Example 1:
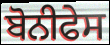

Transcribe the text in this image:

ਬੋਨੀਫੇਸ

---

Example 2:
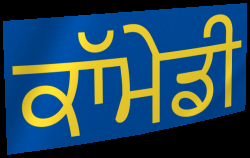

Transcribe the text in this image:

ਕਾੱਮੇਡੀ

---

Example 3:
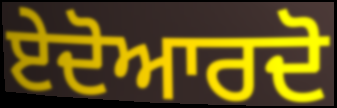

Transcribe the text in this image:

ਏਦੋਆਰਦੋ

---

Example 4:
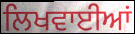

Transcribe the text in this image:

ਲਿਖਵਾਈਆਂ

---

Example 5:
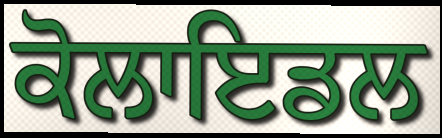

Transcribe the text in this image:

ਕੋਲਾਇਡਲ